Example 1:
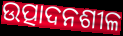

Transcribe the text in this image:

ଉତ୍ପାଦନଶୀଳ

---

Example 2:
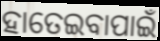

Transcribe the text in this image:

ହାତେଇବାପାଇଁ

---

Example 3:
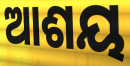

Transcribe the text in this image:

ଆଶୟ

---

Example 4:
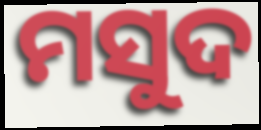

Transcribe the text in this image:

ମସୁଦ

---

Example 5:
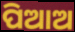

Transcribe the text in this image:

ପିଆଅ